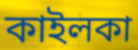
কাইলকা